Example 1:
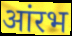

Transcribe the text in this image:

आंरभ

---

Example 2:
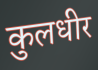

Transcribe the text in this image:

कुलधीर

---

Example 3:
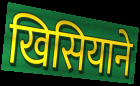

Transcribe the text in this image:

खिसियाने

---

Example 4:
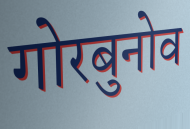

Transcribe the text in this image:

गोरबुनोव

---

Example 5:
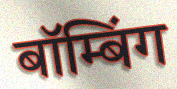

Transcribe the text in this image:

बॉम्बिंग